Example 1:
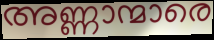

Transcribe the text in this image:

അണ്ണാന്മാരെ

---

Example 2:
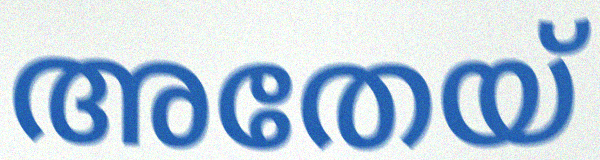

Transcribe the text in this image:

അതേയ്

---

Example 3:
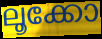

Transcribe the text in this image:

ലൂക്കോ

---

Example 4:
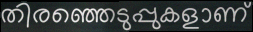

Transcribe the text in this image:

തിരഞ്ഞെടുപ്പുകളാണ്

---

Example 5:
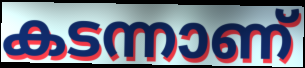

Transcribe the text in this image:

കടന്നാണ്